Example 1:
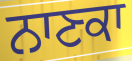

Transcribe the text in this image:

ਨਾਣਕਾ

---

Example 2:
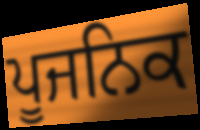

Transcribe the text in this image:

ਪੂਜਨਿਕ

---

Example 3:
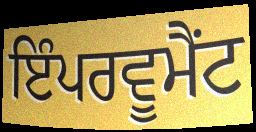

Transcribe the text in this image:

ਇੰਪਰਵੂਮੈਂਟ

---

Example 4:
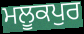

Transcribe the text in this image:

ਮਲੂਕਪੁਰ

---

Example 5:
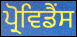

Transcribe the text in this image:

ਪ੍ਰੋਵਿਡੈਂਸ